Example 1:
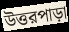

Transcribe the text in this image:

উত্তরপাড়া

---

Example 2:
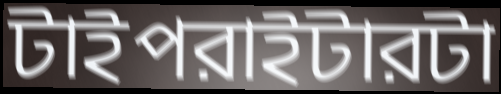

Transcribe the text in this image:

টাইপরাইটারটা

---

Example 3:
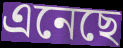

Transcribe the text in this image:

এনেছে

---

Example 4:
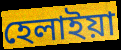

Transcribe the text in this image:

হেলাইয়া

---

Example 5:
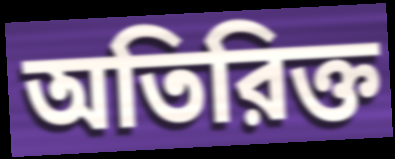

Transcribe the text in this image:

অতিরিক্ত